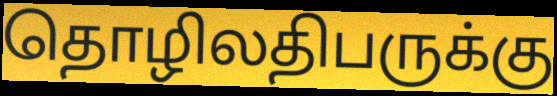
தொழிலதிபருக்கு